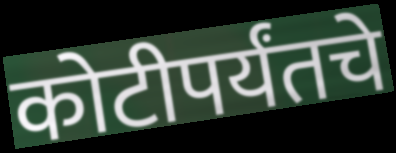
कोटीपर्यंतचे